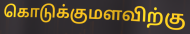
கொடுக்குமளவிற்கு